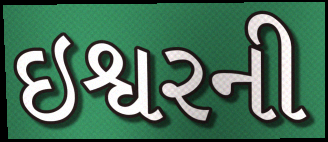
ઇશ્વરની